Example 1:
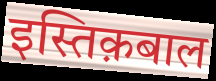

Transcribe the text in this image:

इस्तिक़बाल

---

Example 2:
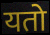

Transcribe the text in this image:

यतो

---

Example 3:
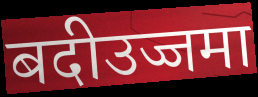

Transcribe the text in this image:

बदीउज्जमा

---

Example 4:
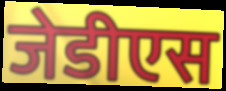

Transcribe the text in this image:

जेडीएस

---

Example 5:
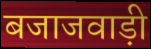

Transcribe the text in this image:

बजाजवाड़ी